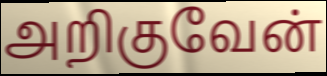
அறிகுவேன்